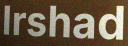
Irshad